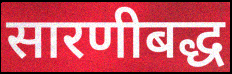
सारणीबद्ध